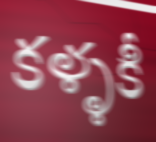
కళ్ళకీ